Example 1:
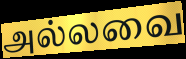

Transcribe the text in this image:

அல்லவை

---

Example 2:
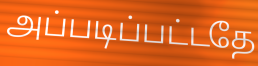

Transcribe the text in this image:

அப்படிப்பட்டதே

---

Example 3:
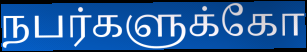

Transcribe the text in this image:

நபர்களுக்கோ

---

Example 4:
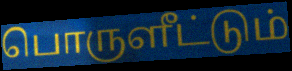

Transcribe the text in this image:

பொருளீட்டும்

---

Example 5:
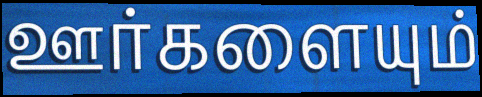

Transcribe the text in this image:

ஊர்களையும்